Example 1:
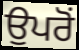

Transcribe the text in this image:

ਉਪਰੋਂ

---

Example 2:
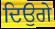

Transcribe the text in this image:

ਦਿਉਗੇ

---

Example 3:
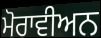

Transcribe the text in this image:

ਮੋਰਾਵੀਅਨ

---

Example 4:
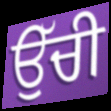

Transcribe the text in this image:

ਉੱਚੀ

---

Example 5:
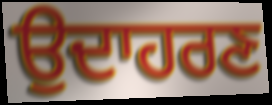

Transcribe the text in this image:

ਉਦਾਹਰਣ